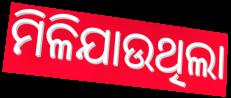
ମିଳିଯାଉଥିଲା